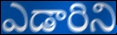
ఎడారిని